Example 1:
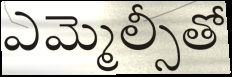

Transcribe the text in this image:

ఎమ్మెల్సీతో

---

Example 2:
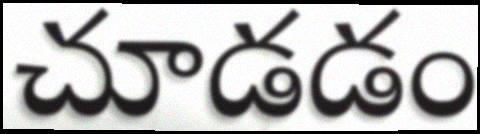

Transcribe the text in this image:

చూడడం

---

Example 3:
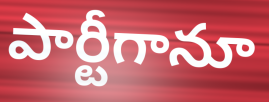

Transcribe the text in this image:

పార్టీగానూ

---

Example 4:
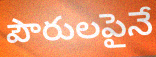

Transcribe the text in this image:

పౌరులపైనే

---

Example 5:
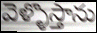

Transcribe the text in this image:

వెళ్ళొస్తాను